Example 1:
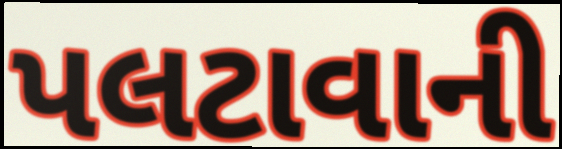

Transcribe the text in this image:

પલટાવાની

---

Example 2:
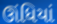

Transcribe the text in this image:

ઊંધિયાં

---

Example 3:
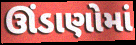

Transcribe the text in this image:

ઊંડાણોમાં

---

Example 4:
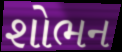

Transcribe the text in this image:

શોભન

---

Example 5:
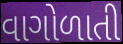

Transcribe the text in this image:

વાગોળાતી